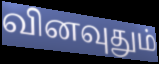
வினவுதும்